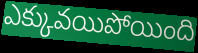
ఎక్కువయిపోయింది